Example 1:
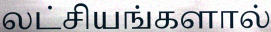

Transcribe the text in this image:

லட்சியங்களால்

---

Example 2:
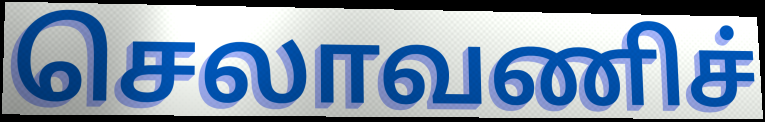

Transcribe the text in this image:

செலாவணிச்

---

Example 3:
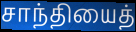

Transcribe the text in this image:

சாந்தியைத்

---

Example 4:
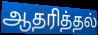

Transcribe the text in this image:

ஆதரித்தல்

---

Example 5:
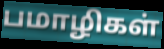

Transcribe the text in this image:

பமாழிகள்